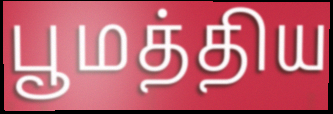
பூமத்திய